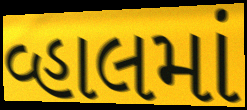
વ્હાલમાં